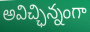
అవిచ్ఛిన్నంగా